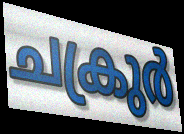
ചക്രുർ